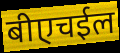
बीएचईल